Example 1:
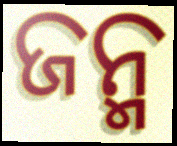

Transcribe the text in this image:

ଜନ୍ମ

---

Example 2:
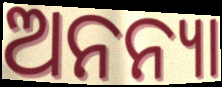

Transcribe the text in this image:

ଅନନ୍ୟା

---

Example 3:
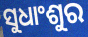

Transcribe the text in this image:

ସୁଧାଂଶୁର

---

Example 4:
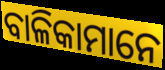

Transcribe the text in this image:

ବାଳିକାମାନେ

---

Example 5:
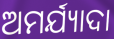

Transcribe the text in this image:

ଅମର୍ଯ୍ୟାଦା